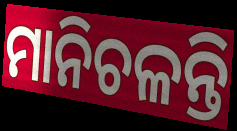
ମାନିଚଳନ୍ତି